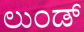
ಲುಂಡ್